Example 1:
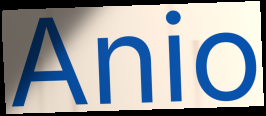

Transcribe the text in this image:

Anio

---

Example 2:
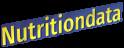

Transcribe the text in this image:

Nutritiondata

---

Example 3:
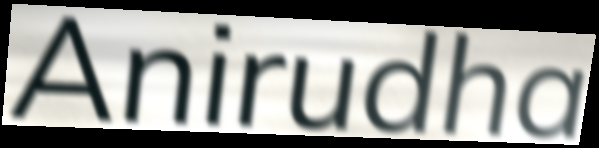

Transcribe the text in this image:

Anirudha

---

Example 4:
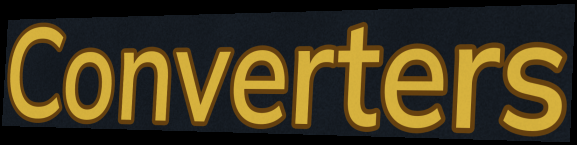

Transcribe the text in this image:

Converters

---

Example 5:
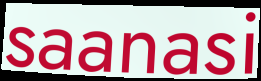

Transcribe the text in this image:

saanasi